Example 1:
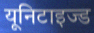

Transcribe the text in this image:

यूनिटाइज्ड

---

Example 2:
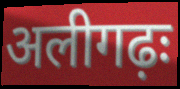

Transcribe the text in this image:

अलीगढ़ः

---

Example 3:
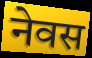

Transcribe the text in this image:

नेवस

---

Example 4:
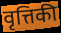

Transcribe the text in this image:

वृत्तिकी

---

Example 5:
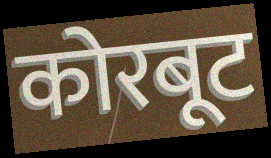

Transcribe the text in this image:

कोरबूट